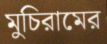
মুচিরামের